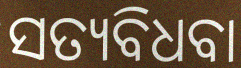
ସତ୍ୟବିଧବା